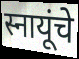
स्नायूंचे